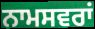
ਨਾਮਸਵਰਾਂ